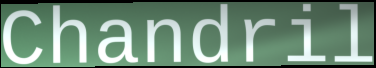
Chandril